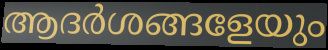
ആദർശങ്ങളേയും